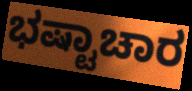
ಭಷ್ಟಾಚಾರ